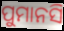
ପୁମାନସି